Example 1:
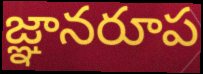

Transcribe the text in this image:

జ్ఞానరూప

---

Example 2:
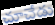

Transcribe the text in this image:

చూచేడు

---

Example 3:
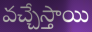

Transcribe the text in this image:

వచ్చేస్తాయి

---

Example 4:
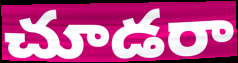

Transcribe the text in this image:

చూడరా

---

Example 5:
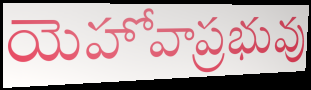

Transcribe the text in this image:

యెహోవాప్రభువు